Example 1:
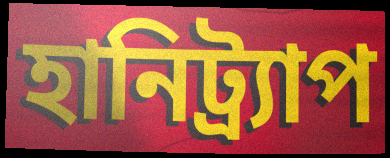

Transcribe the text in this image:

হানিট্র্যাপ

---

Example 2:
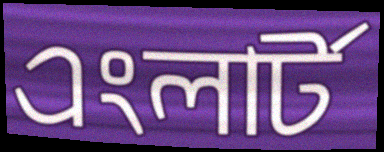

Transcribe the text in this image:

এংলার্ট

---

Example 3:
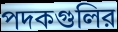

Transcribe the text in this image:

পদকগুলির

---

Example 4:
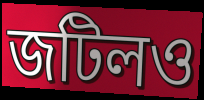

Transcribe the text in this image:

জটিলও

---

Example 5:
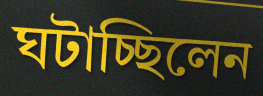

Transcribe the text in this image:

ঘটাচ্ছিলেন